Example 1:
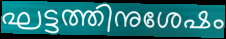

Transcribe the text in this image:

ഘട്ടത്തിനുശേഷം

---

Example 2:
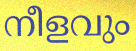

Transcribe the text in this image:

നീളവും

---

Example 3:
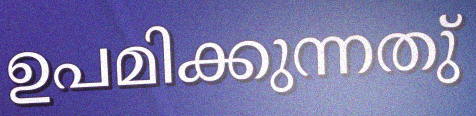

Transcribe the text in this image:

ഉപമിക്കുന്നതു്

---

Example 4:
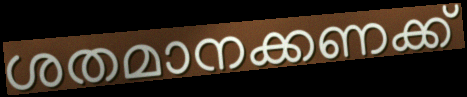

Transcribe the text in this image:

ശതമാനക്കണക്ക്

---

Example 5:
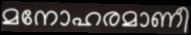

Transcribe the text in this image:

മനോഹരമാണീ